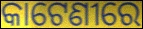
କାଟେଣୀରେ